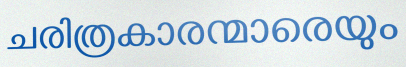
ചരിത്രകാരന്മാരെയും